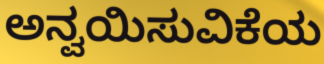
ಅನ್ವಯಿಸುವಿಕೆಯ